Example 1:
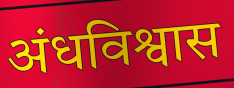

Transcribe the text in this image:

अंधविश्वास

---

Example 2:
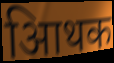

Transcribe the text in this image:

आिथक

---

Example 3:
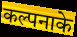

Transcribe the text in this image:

कल्पनाके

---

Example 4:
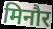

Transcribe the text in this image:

मिनौर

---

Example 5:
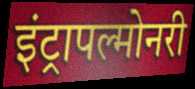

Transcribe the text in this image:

इंट्रापल्मोनरी